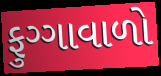
ફુગ્ગાવાળો